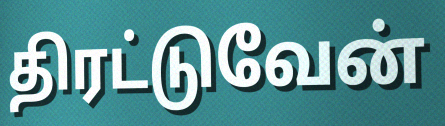
திரட்டுவேன்